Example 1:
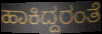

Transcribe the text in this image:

ಹಾಕಿದ್ದರಂತೆ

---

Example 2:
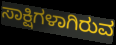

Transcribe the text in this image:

ಸಾಕ್ಷಿಗಳಾಗಿರುವ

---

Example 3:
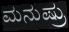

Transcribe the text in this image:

ಮನುಷ್ರು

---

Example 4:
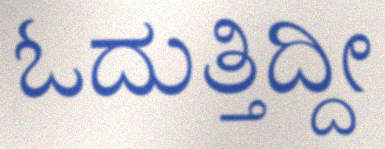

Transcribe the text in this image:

ಓದುತ್ತಿದ್ದೀ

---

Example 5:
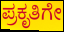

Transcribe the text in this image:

ಪ್ರಕೃತಿಗೇ